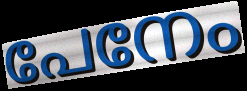
പേനേം